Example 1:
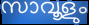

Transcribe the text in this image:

സാവൂളും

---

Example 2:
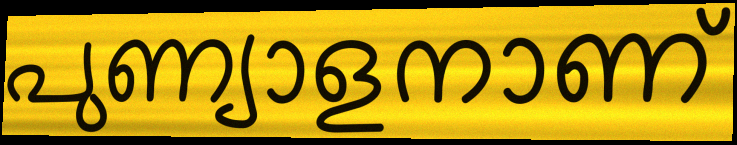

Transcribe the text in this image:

പുണ്യാളനാണ്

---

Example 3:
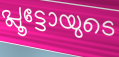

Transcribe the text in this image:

പ്ലൂട്ടോയുടെ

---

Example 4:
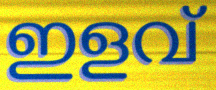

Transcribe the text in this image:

ഇളവ്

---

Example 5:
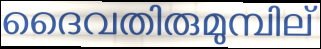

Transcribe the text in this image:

ദൈവതിരുമുമ്പില്